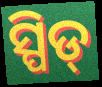
ସ୍ପିଡ୍